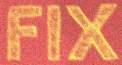
FIX